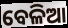
ବେଳିଆ